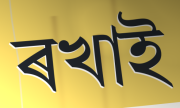
ৰখাই